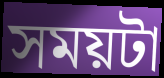
সময়টা